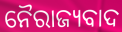
ନୈରାଜ୍ୟବାଦ